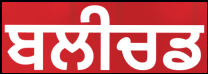
ਬਲੀਚਡ